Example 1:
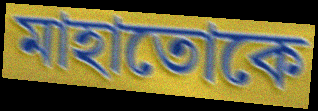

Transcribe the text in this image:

মাহাতোকে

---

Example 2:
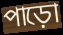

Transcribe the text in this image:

পাড়ো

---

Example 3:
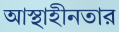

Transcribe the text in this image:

আস্থাহীনতার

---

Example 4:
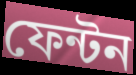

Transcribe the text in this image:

ফেন্টন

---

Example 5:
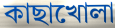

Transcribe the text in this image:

কাছাখোলা